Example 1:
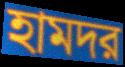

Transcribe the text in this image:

হামদর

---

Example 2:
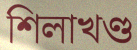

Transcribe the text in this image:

শিলাখণ্ড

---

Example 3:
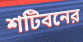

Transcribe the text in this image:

শটিবনের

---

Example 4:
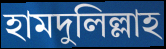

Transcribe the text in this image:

হামদুলিল্লাহ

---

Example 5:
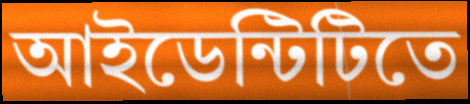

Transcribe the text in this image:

আইডেন্টিটিতে